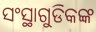
ସଂସ୍ଥାଗୁଡିକଙ୍କ